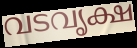
വടവൃക്ഷ